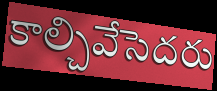
కాల్చివేసెదరు